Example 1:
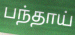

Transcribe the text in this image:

பந்தாய்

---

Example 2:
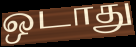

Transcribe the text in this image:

ஒடாது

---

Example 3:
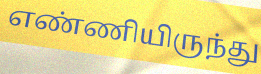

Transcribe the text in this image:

எண்ணியிருந்து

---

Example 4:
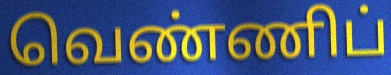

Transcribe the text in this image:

வெண்ணிப்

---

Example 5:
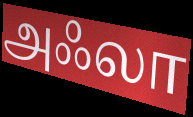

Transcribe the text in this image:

அஃலா